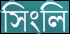
সিংলি